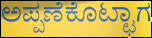
ಅಪ್ಪಣೆಕೊಟ್ಟಾಗ